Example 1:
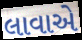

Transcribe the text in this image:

લાવાએ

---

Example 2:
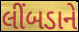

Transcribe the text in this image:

લીંબડાને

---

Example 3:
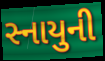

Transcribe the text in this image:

સ્નાયુની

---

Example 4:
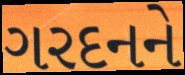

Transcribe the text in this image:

ગરદનને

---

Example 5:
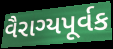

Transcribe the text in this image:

વૈરાગ્યપૂર્વક